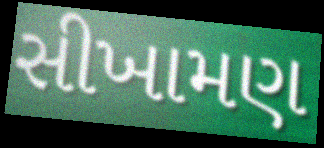
સીખામણ